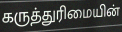
கருத்துரிமையின்